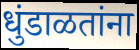
धुंडाळतांना